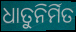
ଧାତୁନିର୍ମିତ